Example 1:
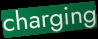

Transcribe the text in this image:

charging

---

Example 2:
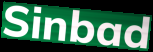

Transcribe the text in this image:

Sinbad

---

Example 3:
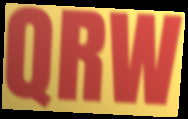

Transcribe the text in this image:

QRW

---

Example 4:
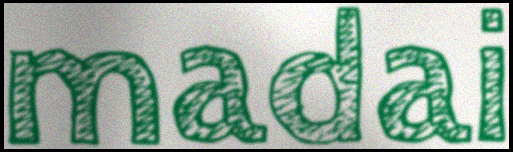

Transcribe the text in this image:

madai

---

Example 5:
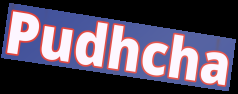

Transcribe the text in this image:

Pudhcha